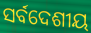
ସର୍ବଦେଶୀୟ